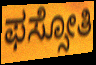
ಫಸ್ಸೋತಿ